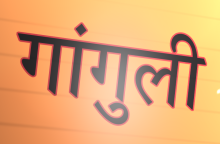
गांगुली